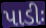
પાડીઃ